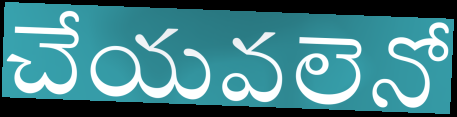
చేయవలెనో